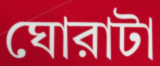
ঘোরাটা